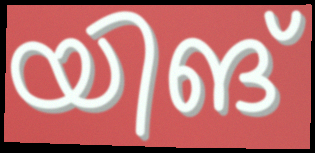
യിങ്